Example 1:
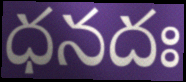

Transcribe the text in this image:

ధనదః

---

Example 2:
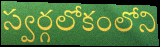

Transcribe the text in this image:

స్వర్గలోకంలోని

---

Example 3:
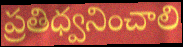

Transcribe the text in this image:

ప్రతిధ్వనించాలి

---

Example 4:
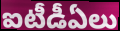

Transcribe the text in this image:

ఐటీడీఏలు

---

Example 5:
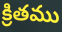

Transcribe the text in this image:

క్రితము